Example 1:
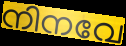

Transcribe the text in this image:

നിനവേ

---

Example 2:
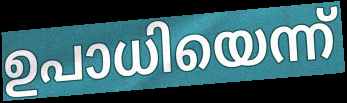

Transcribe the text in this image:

ഉപാധിയെന്ന്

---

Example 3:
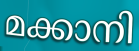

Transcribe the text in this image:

മക്കാനി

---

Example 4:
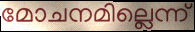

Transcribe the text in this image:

മോചനമില്ലെന്ന്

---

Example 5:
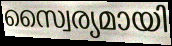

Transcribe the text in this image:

സ്വൈര്യമായി